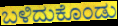
ಬಳಿದುಕೊಂಡು